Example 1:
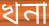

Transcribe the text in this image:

খনা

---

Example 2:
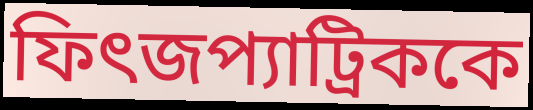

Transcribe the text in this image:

ফিৎজপ্যাট্রিককে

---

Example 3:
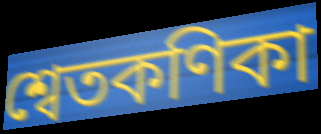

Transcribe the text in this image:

শ্বেতকণিকা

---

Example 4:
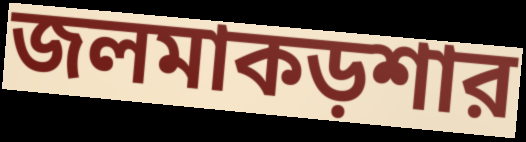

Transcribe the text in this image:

জলমাকড়শার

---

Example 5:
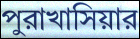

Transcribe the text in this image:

পুরাখাসিয়ার